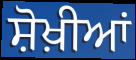
ਸ਼ੋਖ਼ੀਆਂ